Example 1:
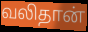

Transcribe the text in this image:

வலிதான்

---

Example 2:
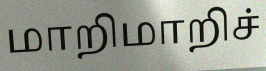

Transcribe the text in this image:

மாறிமாறிச்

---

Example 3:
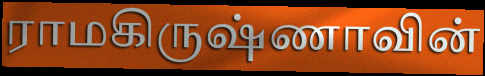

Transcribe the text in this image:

ராமகிருஷ்ணாவின்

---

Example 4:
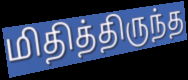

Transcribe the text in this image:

மிதித்திருந்த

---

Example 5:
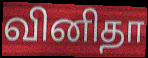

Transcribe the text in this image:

வினிதா